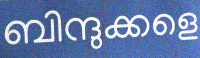
ബിന്ദുക്കളെ